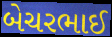
બેચરભાઈ